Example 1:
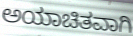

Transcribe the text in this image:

ಅಯಾಚಿತವಾಗಿ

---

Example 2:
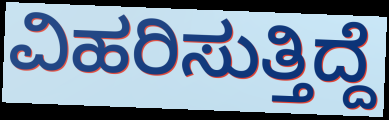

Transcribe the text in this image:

ವಿಹರಿಸುತ್ತಿದ್ದೆ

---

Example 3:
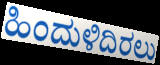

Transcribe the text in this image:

ಹಿಂದುಳಿದಿರಲು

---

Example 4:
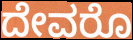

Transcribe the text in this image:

ದೇವರೊ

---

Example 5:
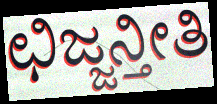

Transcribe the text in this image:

ಛಿಜ್ಜನ್ತೀತಿ